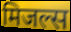
मिजल्स